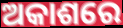
ଅକାଶରେ